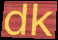
dk